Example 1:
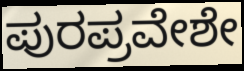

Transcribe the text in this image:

ಪುರಪ್ರವೇಶೇ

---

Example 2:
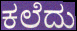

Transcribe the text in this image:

ಕಲೆದು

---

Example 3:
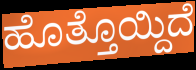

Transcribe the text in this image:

ಹೊತ್ತೊಯ್ದಿದೆ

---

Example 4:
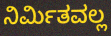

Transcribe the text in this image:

ನಿರ್ಮಿತವಲ್ಲ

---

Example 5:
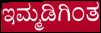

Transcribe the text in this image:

ಇಮ್ಮಡಿಗಿಂತ